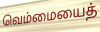
வெம்மையைத்